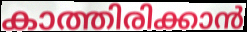
കാത്തിരിക്കാൻ